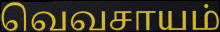
வெவசாயம்